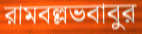
রামবল্লভবাবুর